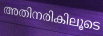
അതിനരികിലൂടെ